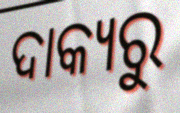
ଦାକ୍ୟରୁ